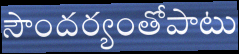
సౌందర్యంతోపాటు